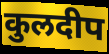
कुलदीप